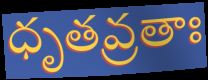
ధృతవ్రతాః